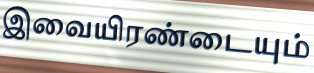
இவையிரண்டையும்